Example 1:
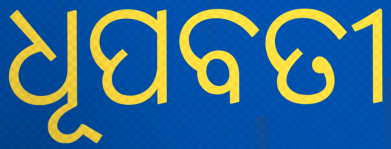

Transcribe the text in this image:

ଧୂପବତୀ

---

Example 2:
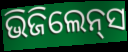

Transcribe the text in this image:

ଭିଜିଲେନ୍‌ସ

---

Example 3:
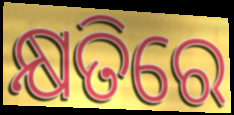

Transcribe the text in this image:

କ୍ଷତିରେ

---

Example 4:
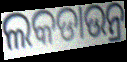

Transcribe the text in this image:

ଲକଡାଉନ୍ର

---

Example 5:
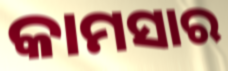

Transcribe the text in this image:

କାମସାର